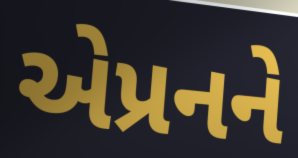
એપ્રનને